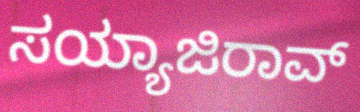
ಸಯ್ಯಾಜಿರಾವ್